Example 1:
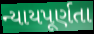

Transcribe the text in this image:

ન્યાયપૂર્ણતા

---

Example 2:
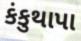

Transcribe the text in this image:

કંકુથાપા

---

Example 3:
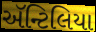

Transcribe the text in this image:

ઍન્ટિલિયા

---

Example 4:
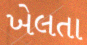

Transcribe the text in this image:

ખેલતા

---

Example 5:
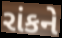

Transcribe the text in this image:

રાંકને